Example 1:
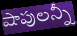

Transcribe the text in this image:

షాపులన్నీ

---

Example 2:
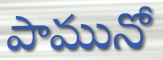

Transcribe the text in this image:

పామునో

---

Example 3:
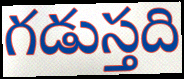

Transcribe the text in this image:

గడుస్తది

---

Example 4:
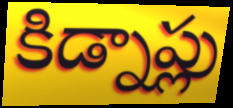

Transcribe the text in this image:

కిడ్నాప్లు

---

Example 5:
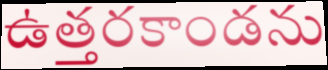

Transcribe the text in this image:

ఉత్తరకాండను